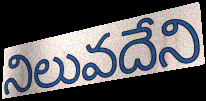
నిలువదేని